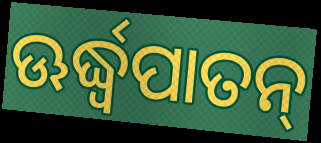
ଊର୍ଦ୍ଧ୍ବପାତନ୍